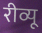
रीव्यू